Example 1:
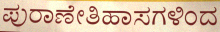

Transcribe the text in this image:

ಪುರಾಣೇತಿಹಾಸಗಳಿಂದ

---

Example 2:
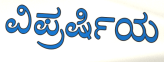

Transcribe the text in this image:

ವಿಪ್ರರ್ಷಿಯ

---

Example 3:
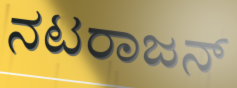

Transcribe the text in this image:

ನಟರಾಜನ್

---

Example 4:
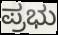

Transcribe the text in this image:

ಪ್ರಭು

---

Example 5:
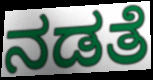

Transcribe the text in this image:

ನಡತೆ